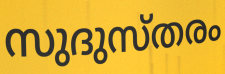
സുദുസ്തരം